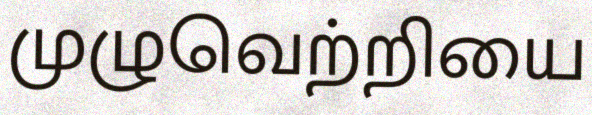
முழுவெற்றியை